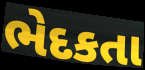
ભેદકતા